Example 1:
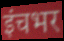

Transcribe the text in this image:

इंचभर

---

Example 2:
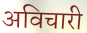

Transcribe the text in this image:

अविचारी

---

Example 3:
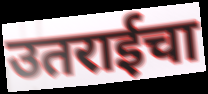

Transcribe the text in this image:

उतराईचा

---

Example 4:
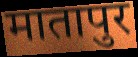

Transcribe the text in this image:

मातापुर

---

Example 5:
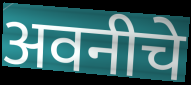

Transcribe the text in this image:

अवनीचे